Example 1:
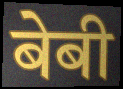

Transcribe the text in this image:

बेबी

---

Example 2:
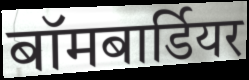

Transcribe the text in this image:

बॉमबार्डियर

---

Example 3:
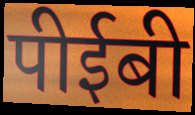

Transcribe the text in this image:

पीईबी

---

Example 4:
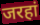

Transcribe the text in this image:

जरहां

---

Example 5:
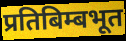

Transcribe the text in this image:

प्रतिबिम्बभूत